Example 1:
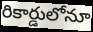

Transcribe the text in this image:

రికార్డులోనూ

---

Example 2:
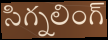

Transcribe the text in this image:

సిగ్నలింగ్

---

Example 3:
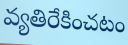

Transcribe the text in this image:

వ్యతిరేకించటం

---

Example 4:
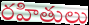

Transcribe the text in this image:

రహితులు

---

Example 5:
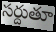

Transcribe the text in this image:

సర్దుతూ